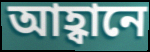
আহ্বানে